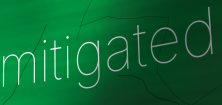
mitigated